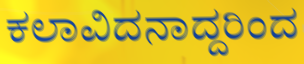
ಕಲಾವಿದನಾದ್ದರಿಂದ